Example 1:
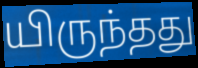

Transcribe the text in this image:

யிருந்தது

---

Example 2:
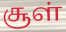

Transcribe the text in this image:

சூள்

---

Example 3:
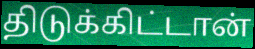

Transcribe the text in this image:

திடுக்கிட்டான்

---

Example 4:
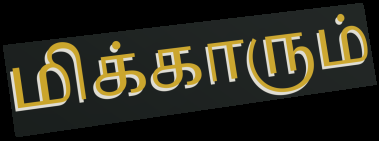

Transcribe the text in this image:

மிக்காரும்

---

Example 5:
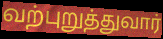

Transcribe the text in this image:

வற்புறுத்துவார்